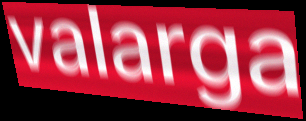
valarga